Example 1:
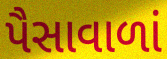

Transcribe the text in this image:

પૈસાવાળાં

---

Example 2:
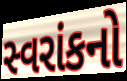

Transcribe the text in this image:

સ્વરાંકનો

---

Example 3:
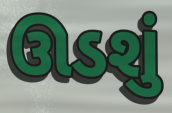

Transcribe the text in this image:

ઊડશું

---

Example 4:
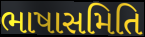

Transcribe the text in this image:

ભાષાસમિતિ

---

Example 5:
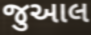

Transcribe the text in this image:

જુઆલ